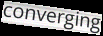
converging